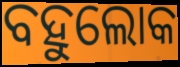
ବହୁଲୋକ